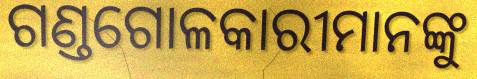
ଗଣ୍ଡଗୋଳକାରୀମାନଙ୍କୁ